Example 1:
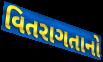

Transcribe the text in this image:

વિતરાગતાનો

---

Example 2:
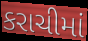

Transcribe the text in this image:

કરાચીમાં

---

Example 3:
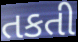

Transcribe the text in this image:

તકતી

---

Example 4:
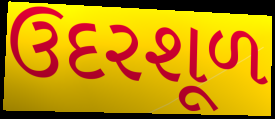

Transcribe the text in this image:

ઉદરશૂળ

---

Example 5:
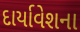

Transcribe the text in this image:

દાર્યાવેશના